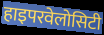
हाइपरवेलोसिटी